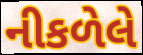
નીકળેલે